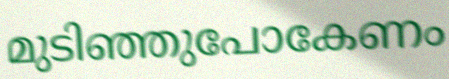
മുടിഞ്ഞുപോകേണം